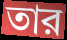
তার